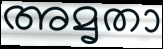
അമൃതാ